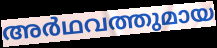
അർഥവത്തുമായ